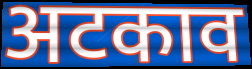
अटकाव